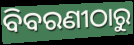
ବିବରଣୀଠାରୁ